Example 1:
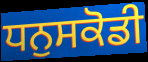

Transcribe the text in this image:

ਧਨੁਸਕੋਡੀ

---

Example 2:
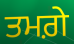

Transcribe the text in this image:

ਤਮਗ਼ੇ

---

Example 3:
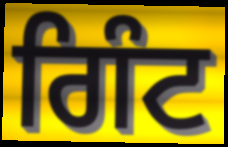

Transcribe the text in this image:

ਗਿੰਟ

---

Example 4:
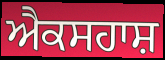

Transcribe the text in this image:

ਐਕਸਹਾਸ਼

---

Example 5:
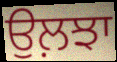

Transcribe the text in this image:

ਉਲ਼ਝਾ